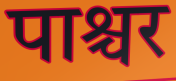
पाश्चर